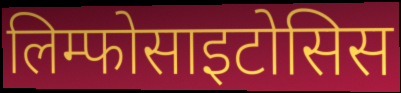
लिम्फोसाइटोसिस